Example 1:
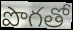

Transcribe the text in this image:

పొగతో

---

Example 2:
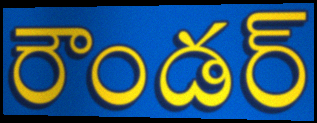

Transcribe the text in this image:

రౌండర్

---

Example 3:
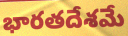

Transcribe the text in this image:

భారతదేశమే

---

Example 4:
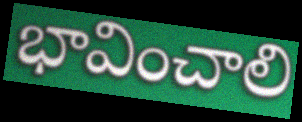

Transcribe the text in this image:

భావించాలి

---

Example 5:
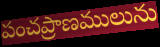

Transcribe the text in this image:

పంచప్రాణములును